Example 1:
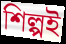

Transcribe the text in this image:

শিল্পই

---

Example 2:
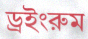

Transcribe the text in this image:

ড্রইংরুম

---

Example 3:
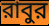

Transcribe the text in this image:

রাবুর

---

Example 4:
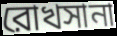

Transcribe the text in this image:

রোখসানা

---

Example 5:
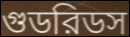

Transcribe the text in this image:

গুডরিডস